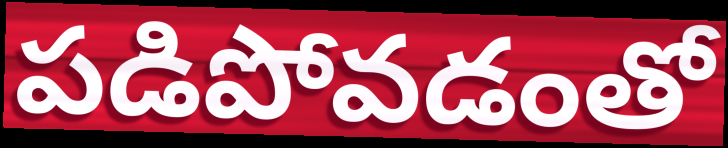
పడిపోవడంతో